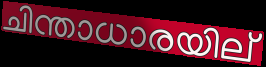
ചിന്താധാരയില്